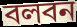
বলবন